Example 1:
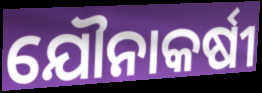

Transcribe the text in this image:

ଯୌନାକର୍ଷୀ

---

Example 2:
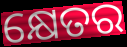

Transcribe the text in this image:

କ୍ଷେତର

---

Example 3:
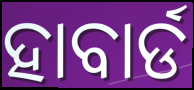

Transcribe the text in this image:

ହାବାର୍ଡ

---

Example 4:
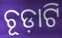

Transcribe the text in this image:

ଚୂଡ଼ାଟି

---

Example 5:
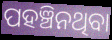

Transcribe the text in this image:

ପହଞ୍ଚିନଥିବା